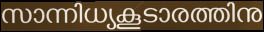
സാന്നിധ്യകൂടാരത്തിനു